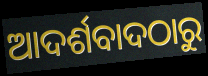
ଆଦର୍ଶବାଦଠାରୁ